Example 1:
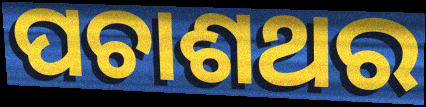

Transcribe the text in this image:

ପଚାଶଥର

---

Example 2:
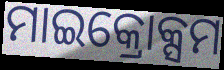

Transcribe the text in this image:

ମାଇକ୍ରୋକ୍ସମ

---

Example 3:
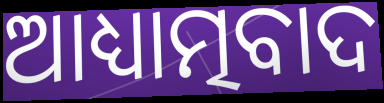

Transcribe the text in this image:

ଆଧ୍ୟାତ୍ମବାଦ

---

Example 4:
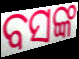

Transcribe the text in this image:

ବସଙ୍କ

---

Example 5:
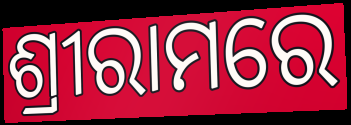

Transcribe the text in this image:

ଶ୍ରୀରାମରେ